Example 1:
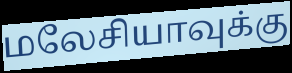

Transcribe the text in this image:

மலேசியாவுக்கு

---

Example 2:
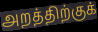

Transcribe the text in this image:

அறத்திற்குக்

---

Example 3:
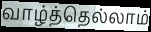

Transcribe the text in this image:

வாழ்த்தெல்லாம்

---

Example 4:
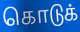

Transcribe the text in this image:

கொடுக்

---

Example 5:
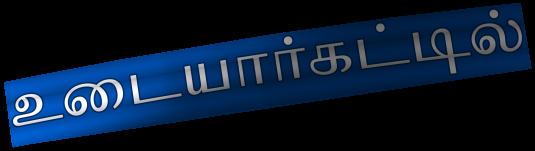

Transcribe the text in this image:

உடையார்கட்டில்